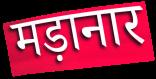
मड़ानार